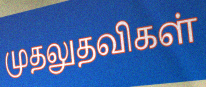
முதலுதவிகள்